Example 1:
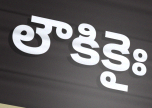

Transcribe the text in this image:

లౌకికైః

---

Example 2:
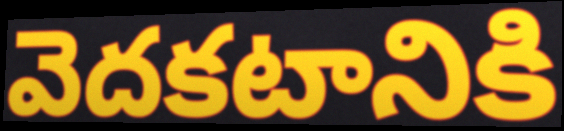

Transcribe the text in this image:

వెదకటానికి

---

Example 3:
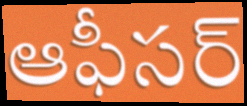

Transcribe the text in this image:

ఆఫీసర్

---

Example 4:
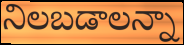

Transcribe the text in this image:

నిలబడాలన్నా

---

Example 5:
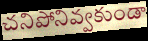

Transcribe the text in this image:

చనిపోనివ్వకుండా